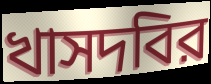
খাসদবির